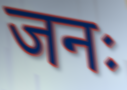
जनः